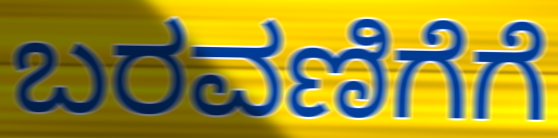
ಬರವಣಿಗೆಗೆ